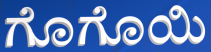
ಗೊಗೊಯಿ